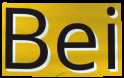
Bei